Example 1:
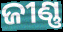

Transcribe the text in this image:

ଜୀଣ୍ଣ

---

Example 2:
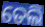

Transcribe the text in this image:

ତେଲି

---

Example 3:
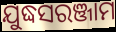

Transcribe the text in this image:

ଯୁଦ୍ଧସରଞ୍ଜାମ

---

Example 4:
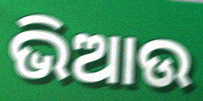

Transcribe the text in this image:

ଭିଆଉ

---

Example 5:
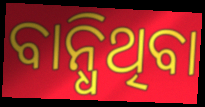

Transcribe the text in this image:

ବାନ୍ଧିଥିବା